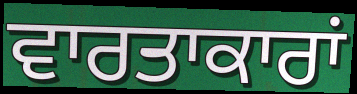
ਵਾਰਤਾਕਾਰਾਂ